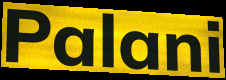
Palani